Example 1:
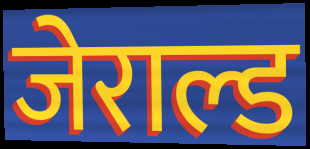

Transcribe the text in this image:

जेराल्ड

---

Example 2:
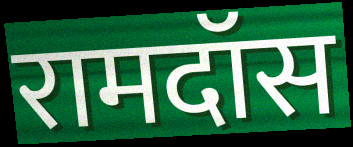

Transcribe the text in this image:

रामदॉस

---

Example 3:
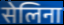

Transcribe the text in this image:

सेलिना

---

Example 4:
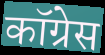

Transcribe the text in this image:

कॉग्रेस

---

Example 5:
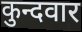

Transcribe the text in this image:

कुन्दवार